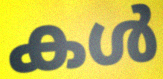
കൾ